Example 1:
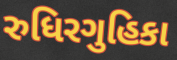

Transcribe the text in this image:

રુધિરગુહિકા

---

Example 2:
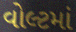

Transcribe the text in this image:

વોલ્ટમાં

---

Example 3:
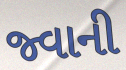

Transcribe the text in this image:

જ્વાની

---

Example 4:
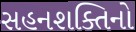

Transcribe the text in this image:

સહનશક્તિનો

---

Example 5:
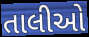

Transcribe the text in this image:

તાલીઓ